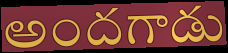
అందగాడు